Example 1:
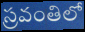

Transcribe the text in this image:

స్రవంతిలో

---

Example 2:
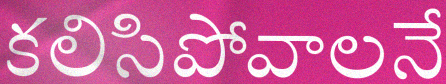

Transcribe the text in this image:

కలిసిపోవాలనే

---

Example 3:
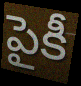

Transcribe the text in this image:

పైకీ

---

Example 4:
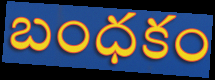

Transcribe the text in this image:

బంధకం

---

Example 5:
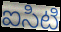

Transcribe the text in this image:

ఐసిటి